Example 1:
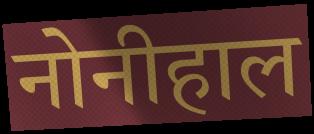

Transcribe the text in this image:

नोनीहाल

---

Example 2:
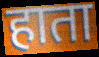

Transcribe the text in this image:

हाता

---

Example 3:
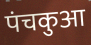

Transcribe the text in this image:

पंचकुआ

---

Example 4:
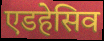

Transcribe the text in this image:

एडहेसिव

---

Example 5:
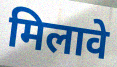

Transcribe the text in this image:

मिलावे